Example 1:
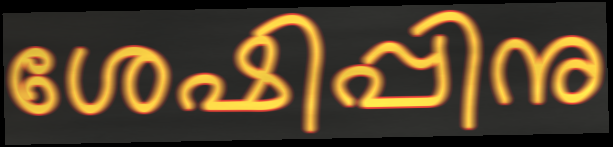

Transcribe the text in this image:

ശേഷിപ്പിനു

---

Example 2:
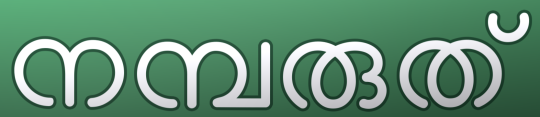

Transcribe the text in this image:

നമ്പരുത്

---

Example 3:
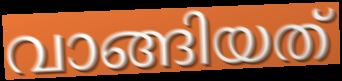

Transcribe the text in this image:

വാങ്ങിയത്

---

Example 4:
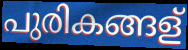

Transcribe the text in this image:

പുരികങ്ങള്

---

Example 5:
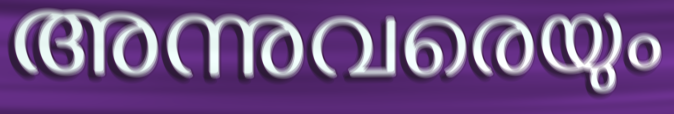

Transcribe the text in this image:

അന്നുവരെയും